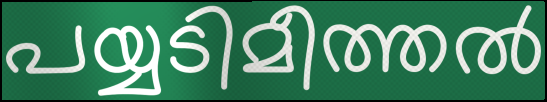
പയ്യടിമീത്തൽ